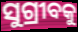
ସୁଗ୍ରୀବକୁ